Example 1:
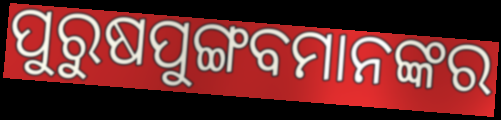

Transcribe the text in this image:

ପୁରୁଷପୁଙ୍ଗବମାନଙ୍କର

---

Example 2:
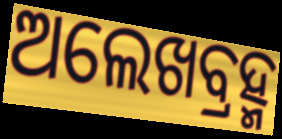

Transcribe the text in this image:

ଅଲେଖବ୍ରହ୍ମ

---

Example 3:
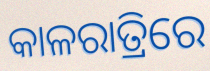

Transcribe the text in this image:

କାଳରାତ୍ରିରେ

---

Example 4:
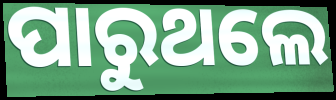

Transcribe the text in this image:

ପାରୁଥଲେ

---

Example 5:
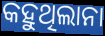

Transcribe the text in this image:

କହୁଥିଲାନା